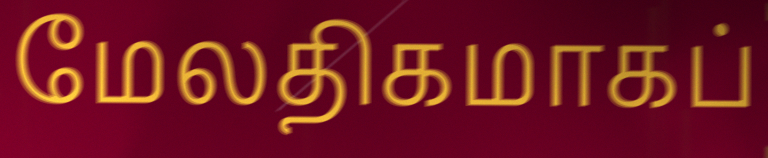
மேலதிகமாகப்